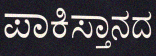
ಪಾಕಿಸ್ತಾನದ